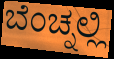
ಬೆಂಚ್ನಲ್ಲಿ